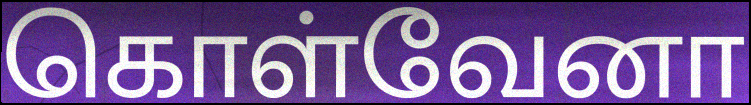
கொள்வேனா